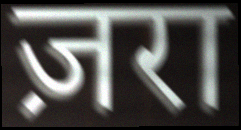
ज़रा